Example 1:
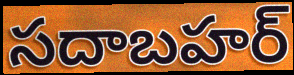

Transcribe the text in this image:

సదాబహర్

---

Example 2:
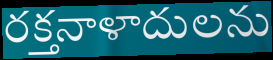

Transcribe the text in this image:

రక్తనాళాదులను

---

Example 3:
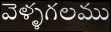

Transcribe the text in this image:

వెళ్ళగలము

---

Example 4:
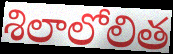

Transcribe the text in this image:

శిలాలోలిత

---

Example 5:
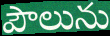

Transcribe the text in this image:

పౌలును